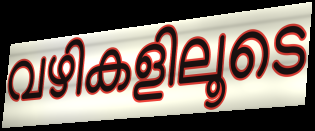
വഴികളിലൂടെ